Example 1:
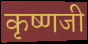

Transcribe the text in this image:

कृष्णजी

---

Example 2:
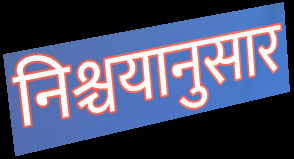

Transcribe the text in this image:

निश्चयानुसार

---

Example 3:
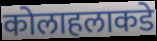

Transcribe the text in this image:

कोलाहलाकडे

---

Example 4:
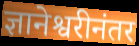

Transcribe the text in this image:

ज्ञानेश्वरीनंतर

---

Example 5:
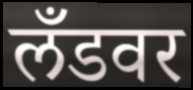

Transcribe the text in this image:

लँडवर